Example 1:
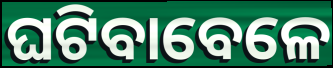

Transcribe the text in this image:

ଘଟିବାବେଳେ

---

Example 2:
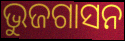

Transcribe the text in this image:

ଭୁଜଗାସନ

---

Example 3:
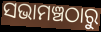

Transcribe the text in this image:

ସଭାମଞ୍ଚଠାରୁ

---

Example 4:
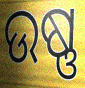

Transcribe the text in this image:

ଉଷ୍ଣ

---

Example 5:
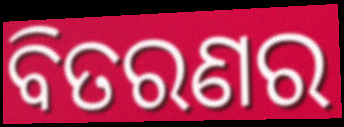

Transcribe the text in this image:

ବିତରଣର